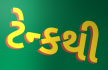
ટેન્કથી